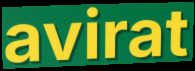
avirat